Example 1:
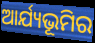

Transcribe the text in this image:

ଆର୍ଯ୍ୟଭୂମିର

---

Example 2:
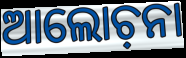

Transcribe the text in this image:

ଆଲୋଚ଼ନା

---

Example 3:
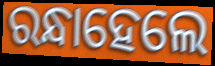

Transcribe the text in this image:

ରନ୍ଧାହେଲେ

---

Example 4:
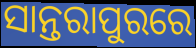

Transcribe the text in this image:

ସାନ୍ତରାପୁରରେ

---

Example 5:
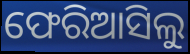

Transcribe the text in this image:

ଫେରିଆସିଲୁ